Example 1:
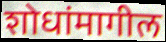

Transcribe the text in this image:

शोधांमागील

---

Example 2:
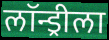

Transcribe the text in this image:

लॉन्ड्रीला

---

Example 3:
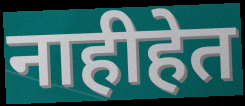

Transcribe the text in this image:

नाहीहेत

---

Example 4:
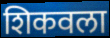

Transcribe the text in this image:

शिकवला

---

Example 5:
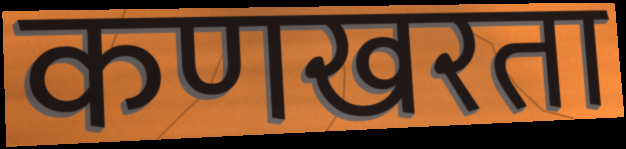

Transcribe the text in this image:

कणखरता